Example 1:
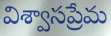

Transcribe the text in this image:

విశ్వాసప్రేమ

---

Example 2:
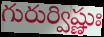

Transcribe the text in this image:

గురుర్విష్ణుః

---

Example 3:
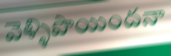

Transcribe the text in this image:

వెళ్ళిపొయిందనా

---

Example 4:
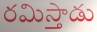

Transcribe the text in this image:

రమిస్తాడు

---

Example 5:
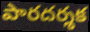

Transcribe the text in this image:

పారదర్శక